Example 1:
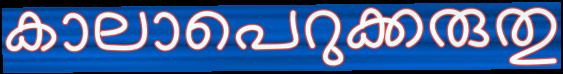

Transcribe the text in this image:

കാലാപെറുക്കരുതു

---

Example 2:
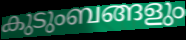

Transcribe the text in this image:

കുടുംബങ്ങളും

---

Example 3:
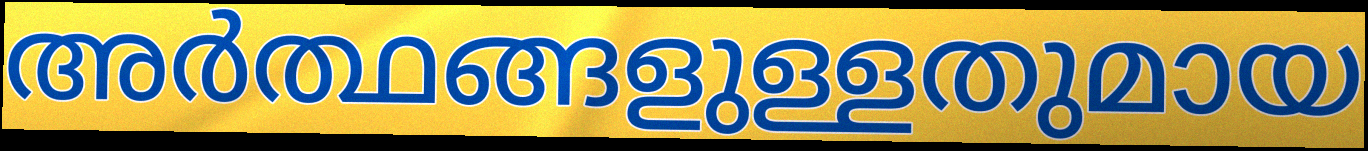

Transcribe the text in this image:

അർത്ഥങ്ങളുള്ളതുമായ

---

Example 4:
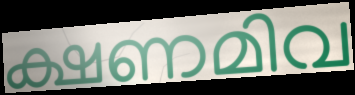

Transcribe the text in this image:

ക്ഷണമിവ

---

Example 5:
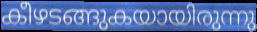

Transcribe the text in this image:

കീഴടങ്ങുകയായിരുന്നു